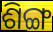
ଶିଙ୍ଗ